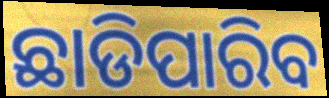
ଛାଡିପାରିବ